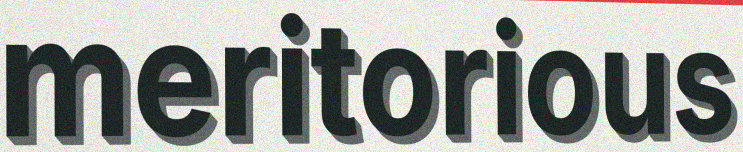
meritorious